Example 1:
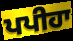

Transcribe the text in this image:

ਪਪੀਹਾ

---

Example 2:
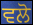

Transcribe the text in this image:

ਵਲੋ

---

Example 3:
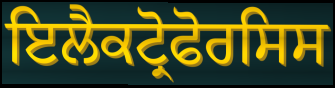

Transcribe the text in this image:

ਇਲੈਕਟ੍ਰੋਫੋਰਸਿਸ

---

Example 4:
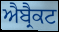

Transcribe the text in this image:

ਐਬ੍ਰੈਕਟ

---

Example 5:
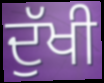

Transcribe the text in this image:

ਦੁੱਖੀ